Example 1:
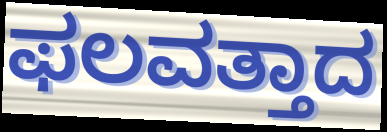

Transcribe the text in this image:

ಫಲವತ್ತಾದ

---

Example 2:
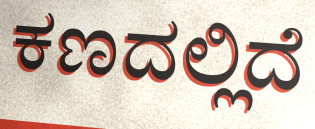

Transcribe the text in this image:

ಕಣದಲ್ಲಿದೆ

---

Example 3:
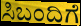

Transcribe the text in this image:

ಸಿಬಂದಿಗೆ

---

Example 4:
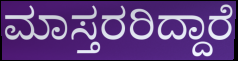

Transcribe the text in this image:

ಮಾಸ್ತರರಿದ್ದಾರೆ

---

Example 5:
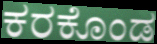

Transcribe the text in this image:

ಕರಕೊಂಡ